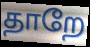
தாறே